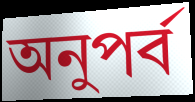
অনুপর্ব